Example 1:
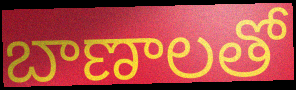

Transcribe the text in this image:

బాణాలతో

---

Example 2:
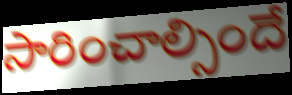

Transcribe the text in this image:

సారించాల్సిందే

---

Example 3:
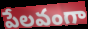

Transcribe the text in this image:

పేలవంగా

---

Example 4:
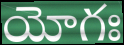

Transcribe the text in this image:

యోగః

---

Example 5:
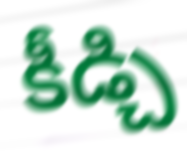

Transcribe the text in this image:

కీడ్చి